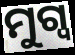
ମୁଗ୍ୱ